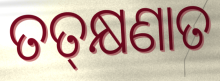
ତତ୍‍କ୍ଷଣାତ